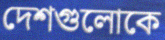
দেশগুলোকে